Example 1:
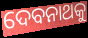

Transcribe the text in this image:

ଦେବନାଥକୁ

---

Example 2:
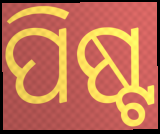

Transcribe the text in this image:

ପିଷ୍ଟ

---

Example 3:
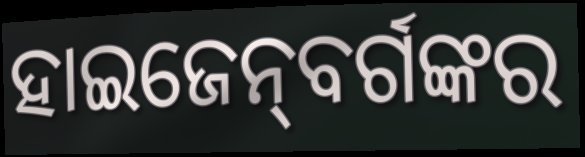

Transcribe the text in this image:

ହାଇଜେନ୍‌ବର୍ଗଙ୍କର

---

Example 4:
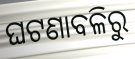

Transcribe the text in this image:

ଘଟଣାବଳିରୁ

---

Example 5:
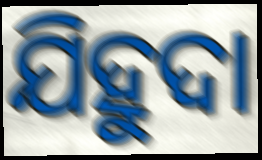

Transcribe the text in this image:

ଯିହୁଦା